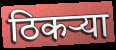
ठिकर्‍या